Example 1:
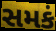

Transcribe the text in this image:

સમકં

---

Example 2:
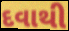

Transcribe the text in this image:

દવાથી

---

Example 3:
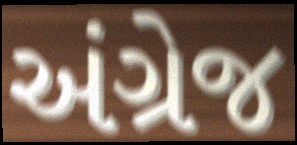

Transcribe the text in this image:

અંગ્રેજ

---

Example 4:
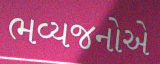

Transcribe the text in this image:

ભવ્યજનોએ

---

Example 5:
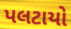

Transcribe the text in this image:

પલટાયો